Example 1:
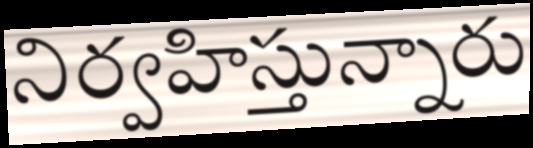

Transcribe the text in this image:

నిర్వహిస్తున్నారు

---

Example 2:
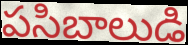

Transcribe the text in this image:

పసిబాలుడి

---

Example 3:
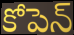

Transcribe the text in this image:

కోపెన్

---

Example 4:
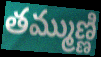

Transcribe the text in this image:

తమ్ముణ్ణి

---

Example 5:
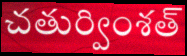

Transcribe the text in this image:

చతుర్వింశత్